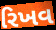
રિખવ